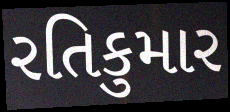
રતિકુમાર